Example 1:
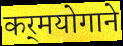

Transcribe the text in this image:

कर्मयोगाने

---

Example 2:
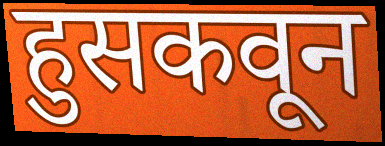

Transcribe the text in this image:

हुसकवून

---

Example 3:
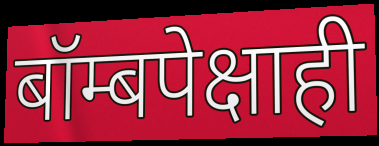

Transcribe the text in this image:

बॉम्बपेक्षाही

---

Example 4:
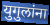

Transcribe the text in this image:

युगुलांना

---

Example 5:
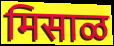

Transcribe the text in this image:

मिसाळ